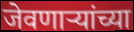
जेवणाऱ्यांच्या